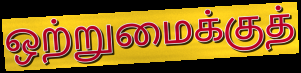
ஒற்றுமைக்குத்